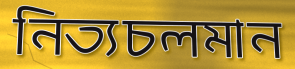
নিত্যচলমান